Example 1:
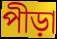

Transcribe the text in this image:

পীড়া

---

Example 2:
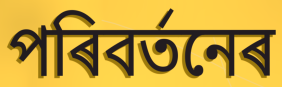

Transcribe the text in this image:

পৰিবৰ্তনেৰ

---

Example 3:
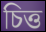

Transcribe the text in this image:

চিত্ত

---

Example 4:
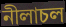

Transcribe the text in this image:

নীলাচল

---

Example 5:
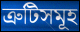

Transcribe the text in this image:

ত্ৰুটিসমূহ